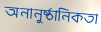
অনানুষ্ঠানিকতা